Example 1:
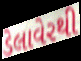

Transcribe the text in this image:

ડેલાવેરથી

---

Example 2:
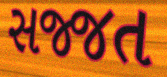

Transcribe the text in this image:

સજ્જત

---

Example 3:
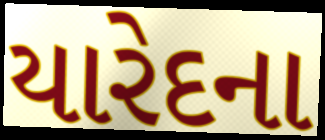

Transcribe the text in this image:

યારેદના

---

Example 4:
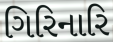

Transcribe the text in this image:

ગિરિનારિ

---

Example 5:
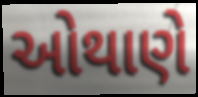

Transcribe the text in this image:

ઓથાણે